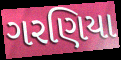
ગરણિયા